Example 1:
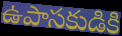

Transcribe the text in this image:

ఉపాసకుడికి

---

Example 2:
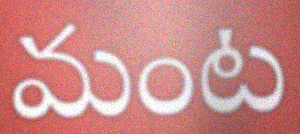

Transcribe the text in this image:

మంట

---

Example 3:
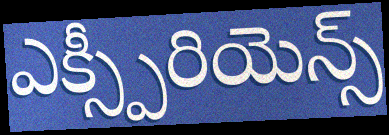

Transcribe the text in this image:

ఎక్స్పీరియెన్స్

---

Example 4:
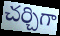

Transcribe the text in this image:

చర్చిగా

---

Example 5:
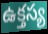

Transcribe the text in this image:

ఉక్తస్య